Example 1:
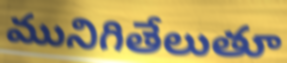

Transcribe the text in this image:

మునిగితేలుతూ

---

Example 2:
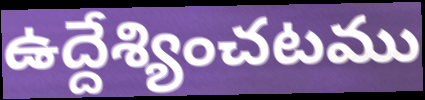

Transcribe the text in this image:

ఉద్దేశ్యించటము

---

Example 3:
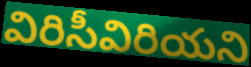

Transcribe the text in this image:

విరిసీవిరియని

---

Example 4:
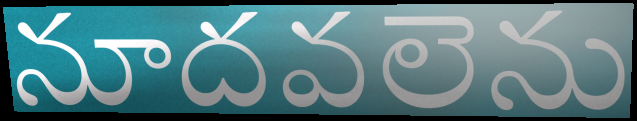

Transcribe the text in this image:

నూదవలెను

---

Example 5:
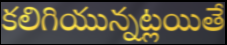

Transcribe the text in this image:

కలిగియున్నట్లయితే